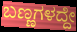
ಬಣ್ಣಗಳದ್ದೇ